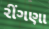
રીંગણા